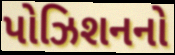
પોઝિશનનો